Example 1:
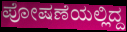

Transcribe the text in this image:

ಪೋಷಣೆಯಲ್ಲಿದ್ದ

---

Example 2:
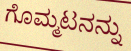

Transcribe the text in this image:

ಗೊಮ್ಮಟನನ್ನು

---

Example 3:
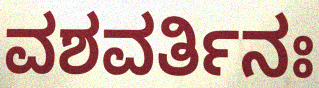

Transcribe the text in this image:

ವಶವರ್ತಿನಃ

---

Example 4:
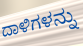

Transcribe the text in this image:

ದಾಳಿಗಳನ್ನು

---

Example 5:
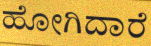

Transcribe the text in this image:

ಹೋಗಿದಾರೆ